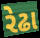
રેઢા